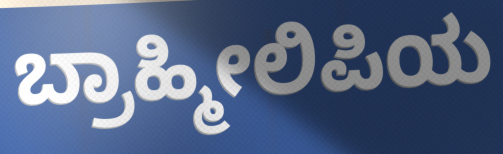
ಬ್ರಾಹ್ಮೀಲಿಪಿಯ